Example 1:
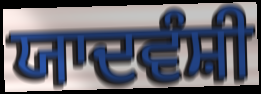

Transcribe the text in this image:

ਯਾਦਵੰਸ਼ੀ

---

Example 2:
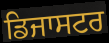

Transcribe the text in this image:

ਡਿਜਾਸਟਰ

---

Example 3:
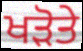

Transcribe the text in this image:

ਖੜੋਤੇ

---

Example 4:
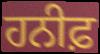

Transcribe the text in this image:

ਹਨੀਫ਼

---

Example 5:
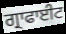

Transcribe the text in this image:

ਗ੍ਰਾਫਾਈਟ